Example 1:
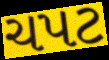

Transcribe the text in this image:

ચપટ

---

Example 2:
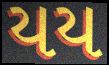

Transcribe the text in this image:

યય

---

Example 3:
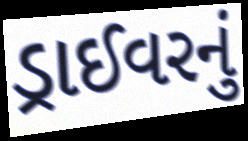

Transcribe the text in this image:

ડ્રાઈવરનું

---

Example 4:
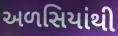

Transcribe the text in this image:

અળસિયાંથી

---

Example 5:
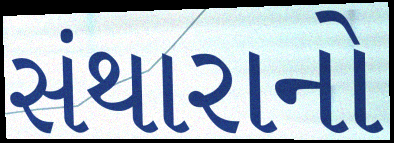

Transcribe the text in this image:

સંથારાનો